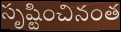
సృష్టించినంత